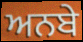
ਅਨਬੇ